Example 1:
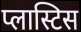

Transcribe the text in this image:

प्लास्टिस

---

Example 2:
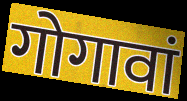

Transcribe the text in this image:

गोगावां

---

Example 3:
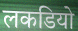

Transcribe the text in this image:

लकडियो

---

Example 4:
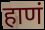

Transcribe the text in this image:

हाणं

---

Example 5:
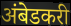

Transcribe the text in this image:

अंबेडकरी